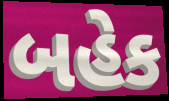
બહેક